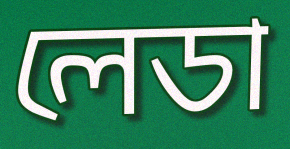
লেডা